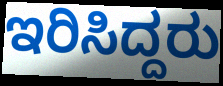
ಇರಿಸಿದ್ದರು